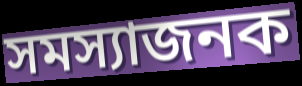
সমস্যাজনক